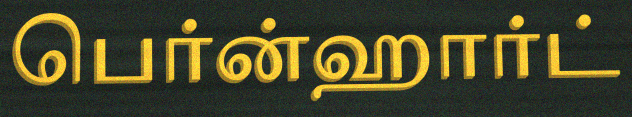
பெர்ன்ஹார்ட்